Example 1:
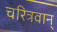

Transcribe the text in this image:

चरित्रवान्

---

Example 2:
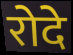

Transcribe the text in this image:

रोदे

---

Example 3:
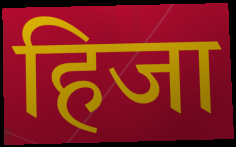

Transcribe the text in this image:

हिजा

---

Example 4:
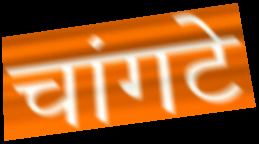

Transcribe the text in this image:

चांगटे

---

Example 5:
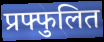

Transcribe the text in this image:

प्रफ्फुलित